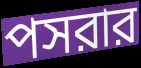
পসরার